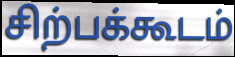
சிற்பக்கூடம்